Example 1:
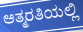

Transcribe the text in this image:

ಆತ್ಮರತಿಯಲ್ಲಿ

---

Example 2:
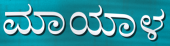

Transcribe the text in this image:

ಮಾಯಾಳ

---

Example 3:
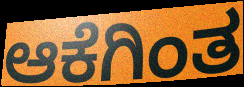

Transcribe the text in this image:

ಆಕೆಗಿಂತ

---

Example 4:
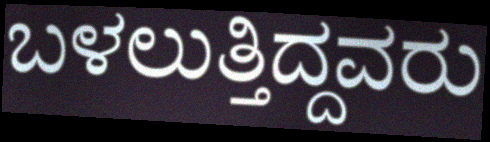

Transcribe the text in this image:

ಬಳಲುತ್ತಿದ್ದವರು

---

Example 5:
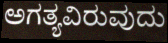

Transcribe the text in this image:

ಅಗತ್ಯವಿರುವುದು